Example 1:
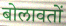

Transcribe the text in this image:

बोलावतों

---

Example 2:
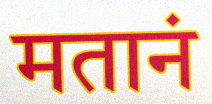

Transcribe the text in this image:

मतानं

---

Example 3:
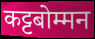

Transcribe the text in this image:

कट्टबोम्मन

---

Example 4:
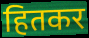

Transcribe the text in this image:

हितकर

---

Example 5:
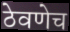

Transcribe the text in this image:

ठेवणेच